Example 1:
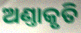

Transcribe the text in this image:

ଅଣ୍ତାକୃତି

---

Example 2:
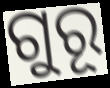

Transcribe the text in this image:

ଗୁରୂ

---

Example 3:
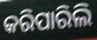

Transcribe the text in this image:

କରିପାରିଲି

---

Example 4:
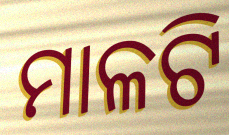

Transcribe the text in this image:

ମାଳଟି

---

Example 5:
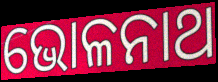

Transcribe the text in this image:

ଭୋଳନାଥ